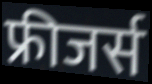
फ्रीजर्स